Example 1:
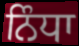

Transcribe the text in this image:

ਨਿੰਧਾ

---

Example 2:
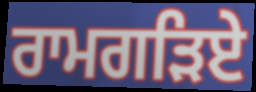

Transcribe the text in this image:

ਰਾਮਗੜਿਏ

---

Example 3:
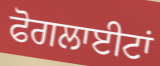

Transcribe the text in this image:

ਫੋਗਲਾਈਟਾਂ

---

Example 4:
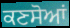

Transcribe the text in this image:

ਕਣਸੋਆਂ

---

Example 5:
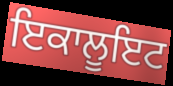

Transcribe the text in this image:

ਇਕਾਲੂਇਟ